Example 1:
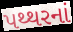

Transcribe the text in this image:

પથ્થરનાં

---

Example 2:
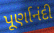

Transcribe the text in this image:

પૂર્ણાનંદી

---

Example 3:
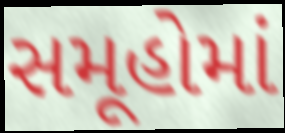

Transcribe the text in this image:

સમૂહોમાં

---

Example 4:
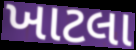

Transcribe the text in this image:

ખાટલા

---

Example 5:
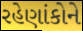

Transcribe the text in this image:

રહેણાંકોને